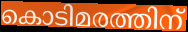
കൊടിമരത്തിന്